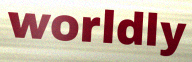
worldly